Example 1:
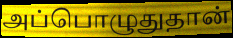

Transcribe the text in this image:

அப்பொழுதுதான்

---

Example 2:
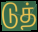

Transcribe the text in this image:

டுத்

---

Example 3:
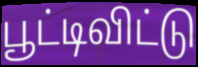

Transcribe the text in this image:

பூட்டிவிட்டு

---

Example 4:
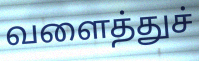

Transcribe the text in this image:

வளைத்துச்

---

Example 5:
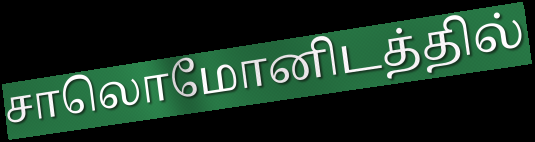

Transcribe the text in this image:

சாலொமோனிடத்தில்